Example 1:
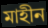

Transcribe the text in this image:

মাহীন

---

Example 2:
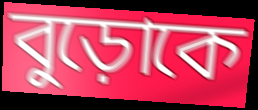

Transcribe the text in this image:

বুড়োকে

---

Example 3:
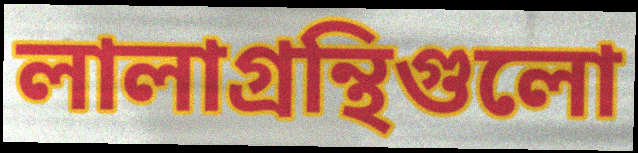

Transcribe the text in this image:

লালাগ্রন্থিগুলো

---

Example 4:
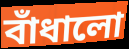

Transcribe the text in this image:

বাঁধালো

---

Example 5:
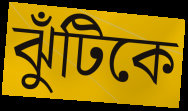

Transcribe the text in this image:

ঝুঁটিকে